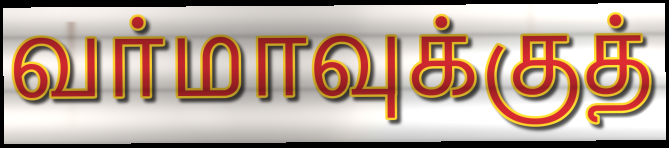
வர்மாவுக்குத்